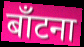
बाँटना